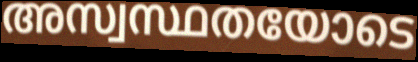
അസ്വസ്ഥതയോടെ